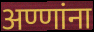
अण्णांना